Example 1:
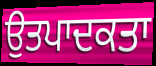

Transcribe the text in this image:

ਉਤਪਾਦਕਤਾ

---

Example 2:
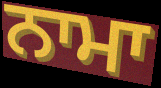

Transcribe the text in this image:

ਨਾਮਾ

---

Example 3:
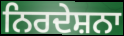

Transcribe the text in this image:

ਨਿਰਦੇਸ਼ਨਾ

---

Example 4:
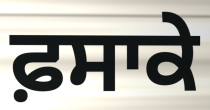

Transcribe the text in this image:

ਫ਼ਸਾਕੇ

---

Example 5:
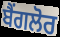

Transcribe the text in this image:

ਬੈਂਗਲੋਰ